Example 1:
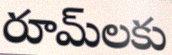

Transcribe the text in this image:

రూమ్‌లకు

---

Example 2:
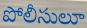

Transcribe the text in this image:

పోలీసులూ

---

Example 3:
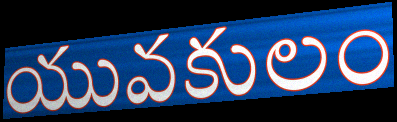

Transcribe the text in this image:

యువకులం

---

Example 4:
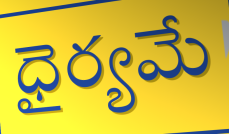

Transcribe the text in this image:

ధైర్యమే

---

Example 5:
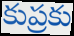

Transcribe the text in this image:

కుప్రకు